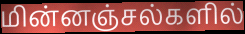
மின்னஞ்சல்களில்